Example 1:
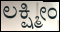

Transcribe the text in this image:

ಲಕ್ಷ್ಮೀಂ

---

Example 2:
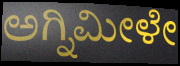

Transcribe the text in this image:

ಅಗ್ನಿಮೀಳೇ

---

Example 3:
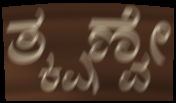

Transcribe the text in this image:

ತ್ಕ್ಷಣ್ವೇ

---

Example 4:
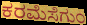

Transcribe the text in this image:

ಕರಮೆಸೆಗುಂ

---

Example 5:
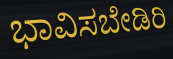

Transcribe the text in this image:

ಭಾವಿಸಬೇಡಿರಿ